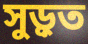
সুড়ুত